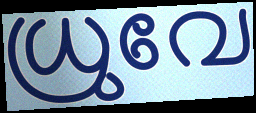
ധ്രുവേ